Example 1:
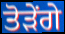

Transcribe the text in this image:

ਤੋੜੇਂਗੇ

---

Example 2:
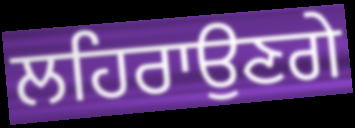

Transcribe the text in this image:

ਲਹਿਰਾਉਣਗੇ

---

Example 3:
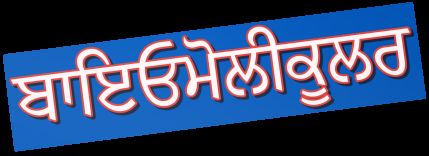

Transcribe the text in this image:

ਬਾਇਓਮੋਲੀਕੂਲਰ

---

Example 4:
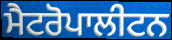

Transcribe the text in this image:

ਮੈਟਰੋਪਾਲੀਟਨ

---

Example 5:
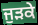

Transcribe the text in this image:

ਜੁੜਕੇ